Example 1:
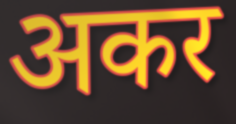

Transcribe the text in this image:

अकर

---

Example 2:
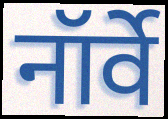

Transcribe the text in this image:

नॉर्वे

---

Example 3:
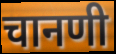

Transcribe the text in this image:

चानणी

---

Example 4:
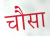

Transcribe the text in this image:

चौसा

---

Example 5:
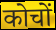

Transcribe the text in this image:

कोचों